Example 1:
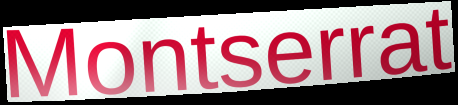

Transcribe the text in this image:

Montserrat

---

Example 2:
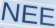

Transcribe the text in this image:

NEE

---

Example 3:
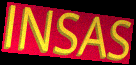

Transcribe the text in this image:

INSAS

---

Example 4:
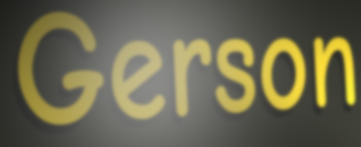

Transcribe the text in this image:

Gerson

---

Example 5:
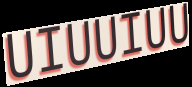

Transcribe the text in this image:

UIUUIUU